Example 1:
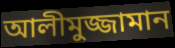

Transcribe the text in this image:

আলীমুজ্জামান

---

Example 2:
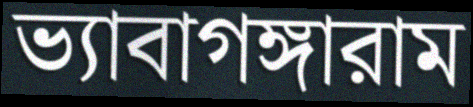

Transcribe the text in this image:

ভ্যাবাগঙ্গারাম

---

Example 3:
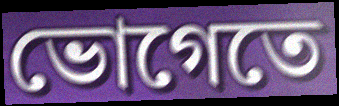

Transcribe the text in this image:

ভোগেতে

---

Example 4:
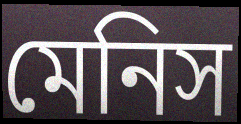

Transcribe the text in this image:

মেনিস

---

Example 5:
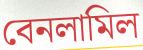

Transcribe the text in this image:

বেনলামিল